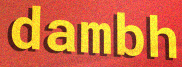
dambh